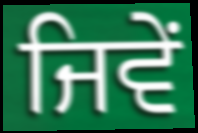
ਜਿਵੇਂ